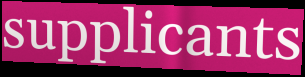
supplicants